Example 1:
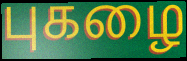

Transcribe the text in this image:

புகழை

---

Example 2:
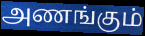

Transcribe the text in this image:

அணங்கும்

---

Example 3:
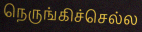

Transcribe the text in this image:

நெருங்கிச்செல்ல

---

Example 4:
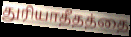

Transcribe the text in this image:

துரியாதீதத்தை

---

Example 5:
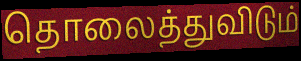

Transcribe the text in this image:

தொலைத்துவிடும்